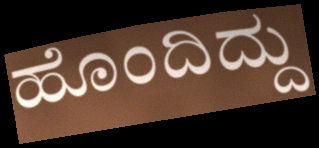
ಹೊಂದಿದ್ದು